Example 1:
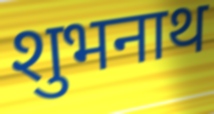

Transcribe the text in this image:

शुभनाथ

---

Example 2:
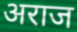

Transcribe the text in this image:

अराज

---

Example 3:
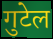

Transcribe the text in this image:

गुटेल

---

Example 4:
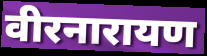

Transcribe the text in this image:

वीरनारायण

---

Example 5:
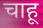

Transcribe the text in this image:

चाहू